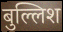
बुल्लिश